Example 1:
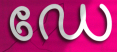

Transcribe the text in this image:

ഡേ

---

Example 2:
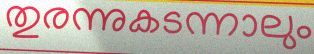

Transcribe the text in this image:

തുരന്നുകടന്നാലും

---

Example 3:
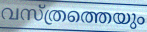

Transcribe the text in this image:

വസ്ത്രത്തെയും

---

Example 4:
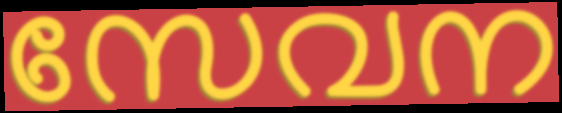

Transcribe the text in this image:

സേവന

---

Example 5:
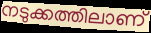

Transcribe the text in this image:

നടുക്കത്തിലാണ്